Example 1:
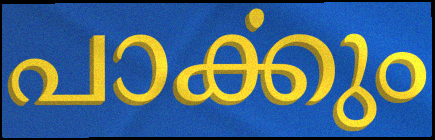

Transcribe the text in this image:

പാൎക്കും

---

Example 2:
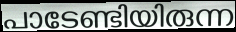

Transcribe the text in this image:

പാടേണ്ടിയിരുന്ന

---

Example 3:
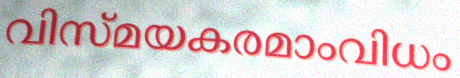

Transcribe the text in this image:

വിസ്മയകരമാംവിധം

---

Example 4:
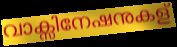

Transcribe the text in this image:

വാക്സിനേഷനുകള്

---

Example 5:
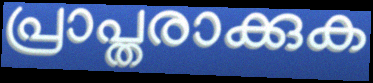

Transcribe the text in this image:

പ്രാപ്തരാക്കുക